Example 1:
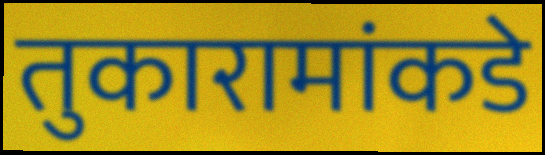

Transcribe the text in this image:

तुकारामांकडे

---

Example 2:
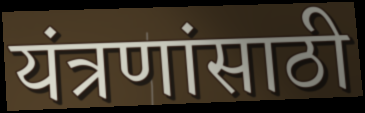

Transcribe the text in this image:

यंत्रणांसाठी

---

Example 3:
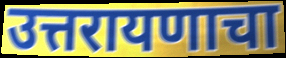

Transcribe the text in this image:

उत्तरायणाचा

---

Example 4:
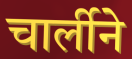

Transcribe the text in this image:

चार्लीने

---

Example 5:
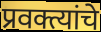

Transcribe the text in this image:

प्रवक्त्यांचे